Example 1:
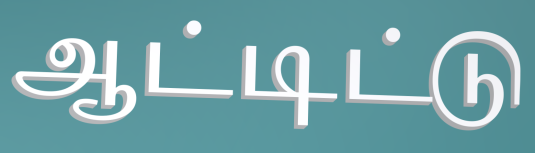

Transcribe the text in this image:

ஆட்டிட்டு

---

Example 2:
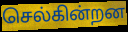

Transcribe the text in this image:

செல்கின்றன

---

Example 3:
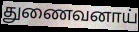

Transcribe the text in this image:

துணைவனாய்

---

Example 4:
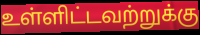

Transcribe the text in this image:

உள்ளிட்டவற்றுக்கு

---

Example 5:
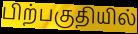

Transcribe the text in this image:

பிற்பகுதியில்